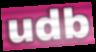
udb